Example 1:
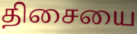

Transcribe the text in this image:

திசையை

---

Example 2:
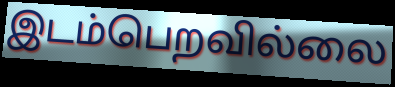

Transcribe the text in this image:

இடம்பெறவில்லை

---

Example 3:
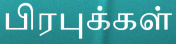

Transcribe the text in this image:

பிரபுக்கள்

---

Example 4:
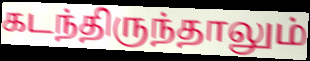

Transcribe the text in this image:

கடந்திருந்தாலும்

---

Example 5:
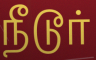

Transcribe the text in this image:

நீடூர்